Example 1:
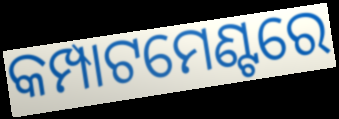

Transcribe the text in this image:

କମ୍ପାଟମେଣ୍ଟରେ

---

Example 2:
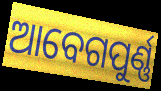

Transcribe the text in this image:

ଆବେଗପୁର୍ଣ୍ଣ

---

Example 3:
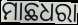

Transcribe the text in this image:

ମାଛଧରା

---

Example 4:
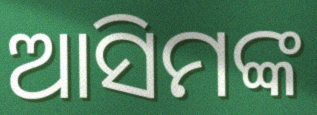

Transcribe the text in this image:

ଆସିମଙ୍କ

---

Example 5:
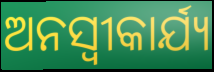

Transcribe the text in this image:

ଅନସ୍ୱୀକାର୍ଯ୍ୟ